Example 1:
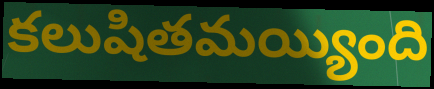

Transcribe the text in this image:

కలుషితమయ్యింది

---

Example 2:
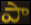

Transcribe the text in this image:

పా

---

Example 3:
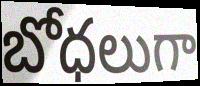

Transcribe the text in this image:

బోధలుగా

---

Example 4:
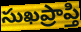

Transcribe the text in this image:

సుఖప్రాప్తి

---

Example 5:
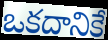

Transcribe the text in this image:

ఒకదానికే